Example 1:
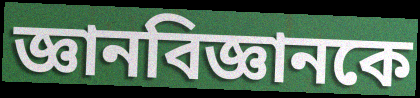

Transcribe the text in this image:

জ্ঞানবিজ্ঞানকে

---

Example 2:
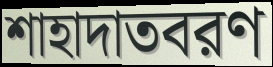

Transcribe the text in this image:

শাহাদাতবরণ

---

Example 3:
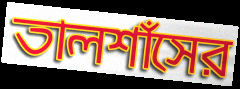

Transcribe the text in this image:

তালশাঁসের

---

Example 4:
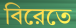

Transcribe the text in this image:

বিরেতে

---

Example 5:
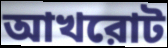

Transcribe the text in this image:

আখরোট